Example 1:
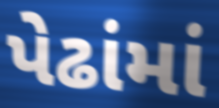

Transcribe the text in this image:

પેઢાંમાં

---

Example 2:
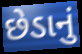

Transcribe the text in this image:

છેડાનું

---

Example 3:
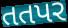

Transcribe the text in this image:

તતપર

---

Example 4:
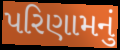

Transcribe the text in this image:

પરિણામનું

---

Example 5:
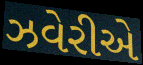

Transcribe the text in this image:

ઝવેરીએ